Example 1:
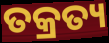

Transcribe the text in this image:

ତକ୍ରତ୍ୟ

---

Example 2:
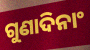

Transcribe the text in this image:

ଗୁଣାଦିନାଂ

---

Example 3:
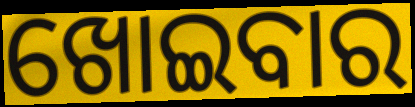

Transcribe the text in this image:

ଖୋଇବାର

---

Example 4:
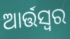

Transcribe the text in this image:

ଆର୍ତ୍ତସ୍ୱର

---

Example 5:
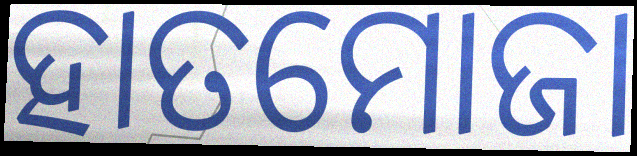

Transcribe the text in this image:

ହାତମୋଜା